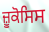
ਜ਼ੂਕੋਸਿਸ